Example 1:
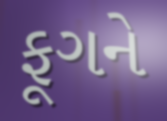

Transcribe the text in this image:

ફૂગને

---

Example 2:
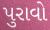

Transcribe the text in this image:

પુરાવો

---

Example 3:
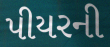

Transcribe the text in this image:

પીયરની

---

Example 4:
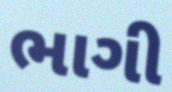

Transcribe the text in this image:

ભાગી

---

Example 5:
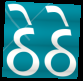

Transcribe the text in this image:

ઠેઠે